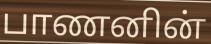
பாணனின்